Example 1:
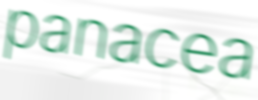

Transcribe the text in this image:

panacea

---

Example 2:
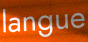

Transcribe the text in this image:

langue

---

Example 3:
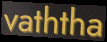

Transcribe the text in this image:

vaththa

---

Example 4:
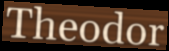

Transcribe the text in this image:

Theodor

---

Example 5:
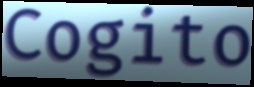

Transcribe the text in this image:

Cogito